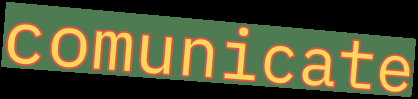
comunicate